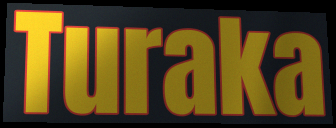
Turaka